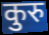
कुरु